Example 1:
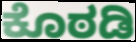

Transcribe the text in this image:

ಕೊಠಡಿ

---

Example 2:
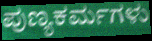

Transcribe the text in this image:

ಪುಣ್ಯಕರ್ಮಗಳು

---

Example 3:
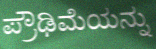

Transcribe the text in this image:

ಪ್ರೌಢಿಮೆಯನ್ನು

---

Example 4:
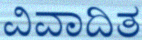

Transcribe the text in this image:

ವಿವಾದಿತ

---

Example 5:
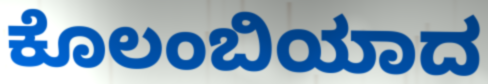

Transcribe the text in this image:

ಕೊಲಂಬಿಯಾದ